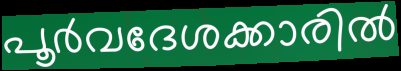
പൂർവദേശക്കാരിൽ